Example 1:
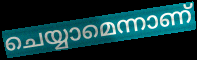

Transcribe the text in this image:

ചെയ്യാമെന്നാണ്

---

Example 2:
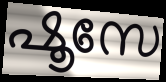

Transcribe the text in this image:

ഷൂസേ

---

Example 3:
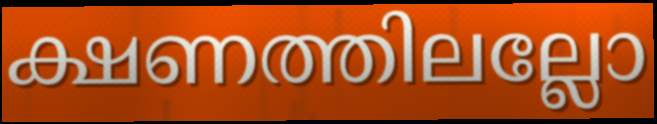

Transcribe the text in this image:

ക്ഷണത്തിലല്ലോ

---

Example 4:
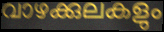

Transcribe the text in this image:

വാഴക്കുലകളും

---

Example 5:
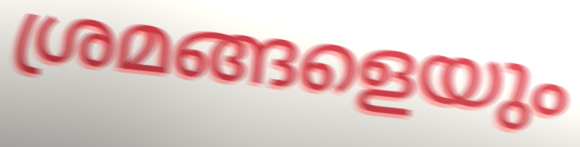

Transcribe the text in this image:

ശ്രമങ്ങളെയും